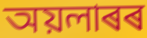
অয়লাৰৰ